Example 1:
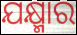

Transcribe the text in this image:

ଯକ୍ଷ୍ମାର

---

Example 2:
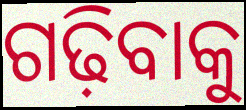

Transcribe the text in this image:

ଗଢ଼ିବାକୁ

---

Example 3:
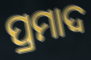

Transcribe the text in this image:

ପ୍ରମାଦ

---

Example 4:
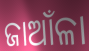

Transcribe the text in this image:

ଜାଆଁଳା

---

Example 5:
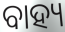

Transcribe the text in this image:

ବାହ୍ୟ